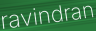
ravindran